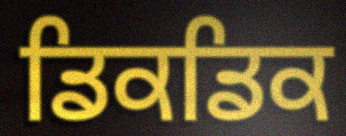
ਡਿਕਡਿਕ